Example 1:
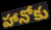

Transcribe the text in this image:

హానోకు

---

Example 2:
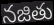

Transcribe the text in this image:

నజితు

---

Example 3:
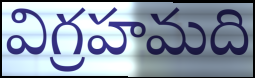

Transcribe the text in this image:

విగ్రహమది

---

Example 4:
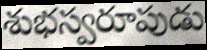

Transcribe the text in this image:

శుభస్వరూపుడు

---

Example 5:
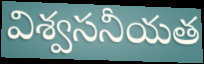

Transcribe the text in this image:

విశ్వసనీయత